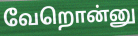
வேறொன்னு